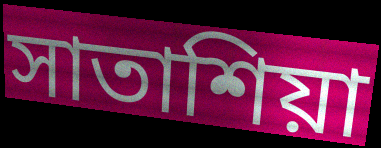
সাতাশিয়া